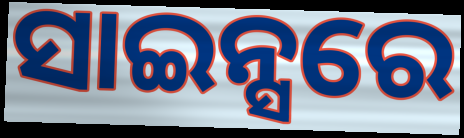
ସାଇନ୍ସରେ